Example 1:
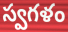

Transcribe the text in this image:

స్వగళం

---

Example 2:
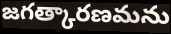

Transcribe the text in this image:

జగత్కారణమను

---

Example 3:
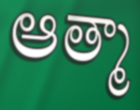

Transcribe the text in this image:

ఆత్మా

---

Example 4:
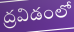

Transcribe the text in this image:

ద్రవిడంలో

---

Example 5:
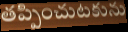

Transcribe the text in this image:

తప్పించుటకును